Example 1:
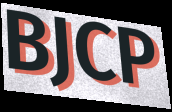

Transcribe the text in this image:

BJCP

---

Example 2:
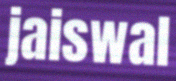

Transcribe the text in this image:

jaiswal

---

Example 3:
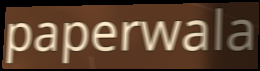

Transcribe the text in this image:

paperwala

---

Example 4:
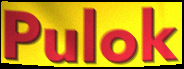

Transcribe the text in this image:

Pulok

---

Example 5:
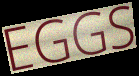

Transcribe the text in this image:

EGGS